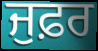
ਜੁਫ਼ਰ